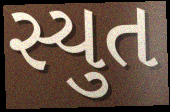
સ્યુત